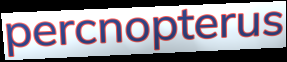
percnopterus